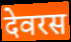
देवरस